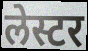
लेस्टर